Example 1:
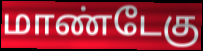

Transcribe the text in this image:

மாண்டேகு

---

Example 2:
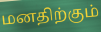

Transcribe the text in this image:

மனதிற்கும்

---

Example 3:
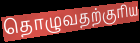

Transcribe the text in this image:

தொழுவதற்குரிய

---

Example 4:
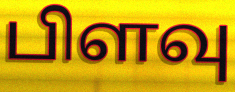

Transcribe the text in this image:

பிளவு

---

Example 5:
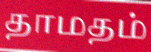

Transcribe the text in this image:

தாமதம்